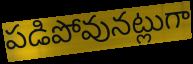
పడిపోవునట్లుగా